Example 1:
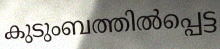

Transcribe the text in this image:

കുടുംബത്തിൽപ്പെട്ട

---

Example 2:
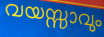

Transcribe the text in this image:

വയസ്സാവും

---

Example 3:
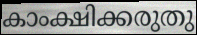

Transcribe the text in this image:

കാംക്ഷിക്കരുതു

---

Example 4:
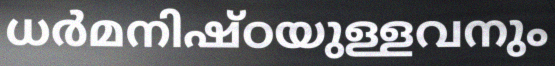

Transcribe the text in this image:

ധർമനിഷ്ഠയുള്ളവനും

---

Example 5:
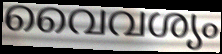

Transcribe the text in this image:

വൈവശ്യം